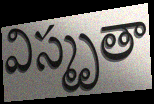
విస్మృతా